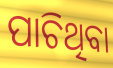
ପାଚିଥିବା